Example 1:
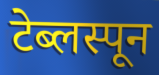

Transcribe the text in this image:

टेब्लस्पून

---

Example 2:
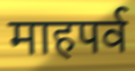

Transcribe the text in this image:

माहपर्व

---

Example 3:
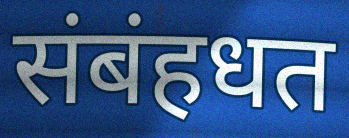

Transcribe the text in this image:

संबंहधत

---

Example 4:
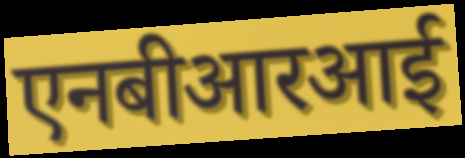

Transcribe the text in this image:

एनबीआरआई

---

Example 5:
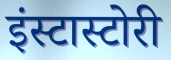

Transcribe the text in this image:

इंस्टास्टोरी